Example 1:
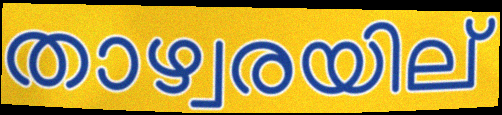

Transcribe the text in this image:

താഴ്വരയില്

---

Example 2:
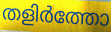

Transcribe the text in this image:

തളിർത്തോ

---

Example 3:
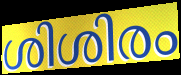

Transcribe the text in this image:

ശിശിരം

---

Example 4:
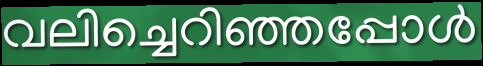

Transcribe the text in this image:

വലിച്ചെറിഞ്ഞപ്പോൾ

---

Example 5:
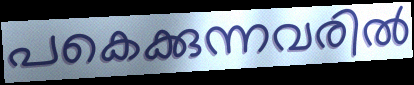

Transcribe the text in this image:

പകെക്കുന്നവരിൽ